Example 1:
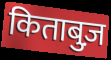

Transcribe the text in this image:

किताबुज़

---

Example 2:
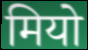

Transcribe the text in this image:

मियो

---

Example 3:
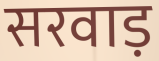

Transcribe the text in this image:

सरवाड़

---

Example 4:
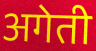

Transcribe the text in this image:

अगेती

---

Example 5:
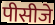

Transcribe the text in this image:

पीसीजे